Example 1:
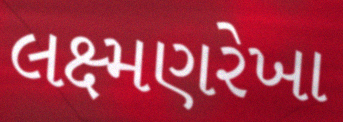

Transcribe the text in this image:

લક્ષ્મણરેખા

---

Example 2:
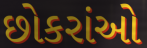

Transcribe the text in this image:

છોકરાંઓ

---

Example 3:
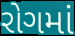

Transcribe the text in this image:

રોગમાં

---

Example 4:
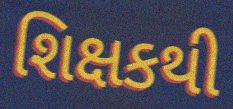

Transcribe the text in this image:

શિક્ષકથી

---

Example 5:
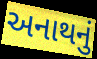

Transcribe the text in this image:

અનાથનું